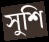
সুশি